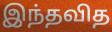
இந்தவித